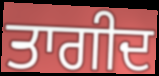
ਤਾਗੀਦ